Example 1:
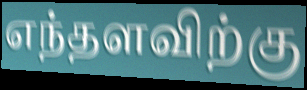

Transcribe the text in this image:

எந்தளவிற்கு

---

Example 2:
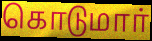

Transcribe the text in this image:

கொடுமார்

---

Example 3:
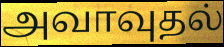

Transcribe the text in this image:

அவாவுதல்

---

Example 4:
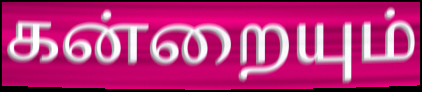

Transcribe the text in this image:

கன்றையும்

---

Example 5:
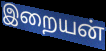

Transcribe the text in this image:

இறையன்